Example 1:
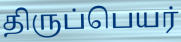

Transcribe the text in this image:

திருப்பெயர்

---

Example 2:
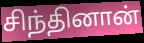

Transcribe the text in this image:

சிந்தினான்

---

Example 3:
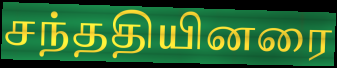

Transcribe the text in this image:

சந்ததியினரை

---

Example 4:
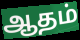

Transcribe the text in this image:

ஆதம்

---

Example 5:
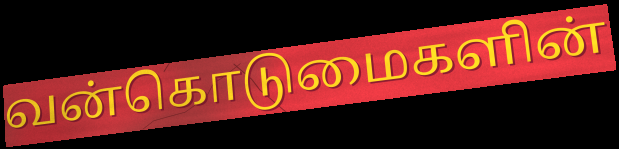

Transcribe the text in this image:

வன்கொடுமைகளின்